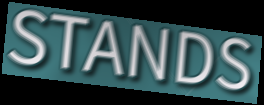
STANDS